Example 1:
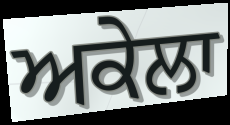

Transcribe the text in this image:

ਅਕੇਲਾ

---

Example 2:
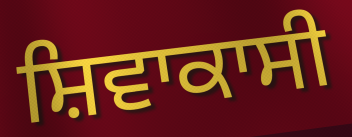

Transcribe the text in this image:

ਸ਼ਿਵਾਕਾਸੀ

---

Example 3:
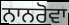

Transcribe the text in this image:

ਨਾਨਰੋਵਾ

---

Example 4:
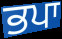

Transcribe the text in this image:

ਭਪਾ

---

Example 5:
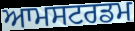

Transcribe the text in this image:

ਆਮਸਟਰਡਮ